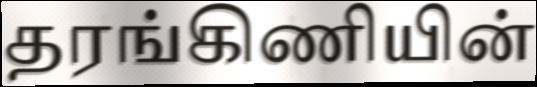
தரங்கிணியின்